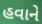
હવાને